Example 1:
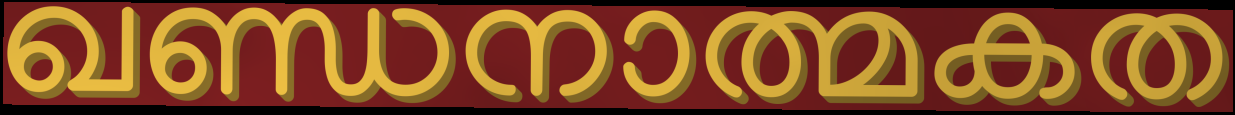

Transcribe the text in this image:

ഖണ്ഡനാത്മകത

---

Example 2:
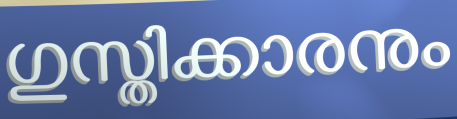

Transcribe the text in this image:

ഗുസ്തിക്കാരനും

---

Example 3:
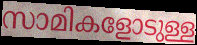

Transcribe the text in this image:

സാമികളോടുള്ള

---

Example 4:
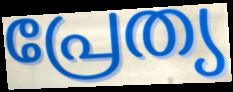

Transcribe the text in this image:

പ്രേത്യ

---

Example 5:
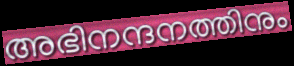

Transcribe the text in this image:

അഭിനന്ദനത്തിനും